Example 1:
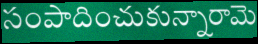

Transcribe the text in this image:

సంపాదించుకున్నారామె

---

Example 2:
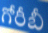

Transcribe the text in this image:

గోరీబీ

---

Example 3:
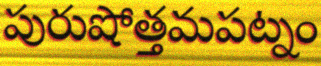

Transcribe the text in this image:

పురుషోత్తమపట్నం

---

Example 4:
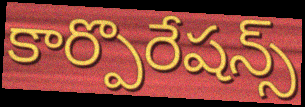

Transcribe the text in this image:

కార్పొరేషన్స్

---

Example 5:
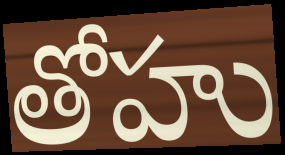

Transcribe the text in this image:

తోహు